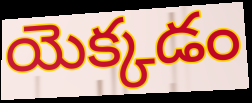
యెక్కడం